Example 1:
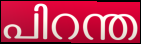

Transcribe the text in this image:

പിറന്ത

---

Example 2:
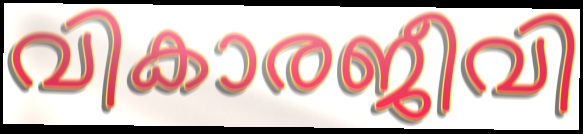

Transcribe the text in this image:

വികാരജീവി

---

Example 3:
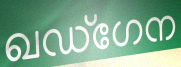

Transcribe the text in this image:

ഖഡ്ഗേന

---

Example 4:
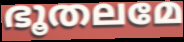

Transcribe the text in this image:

ഭൂതലമേ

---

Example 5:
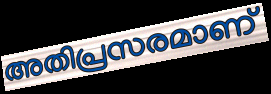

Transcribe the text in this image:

അതിപ്രസരമാണ്